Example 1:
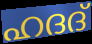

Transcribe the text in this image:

ഹദദ്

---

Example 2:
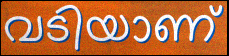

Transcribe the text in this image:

വടിയാണ്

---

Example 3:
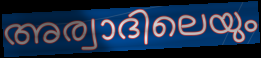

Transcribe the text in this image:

അര്വാദിലെയും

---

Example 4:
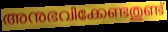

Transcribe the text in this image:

അനുഭവിക്കേണ്ടതുണ്ട്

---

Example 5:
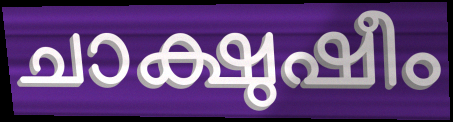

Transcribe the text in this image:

ചാക്ഷുഷീം